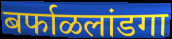
बर्फाळलांडगा